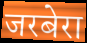
जरबेरा